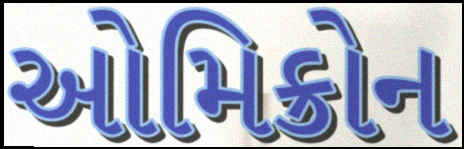
ઓમિક્રોન